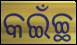
କଇଁଚ୍ଛ